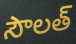
సౌలత్